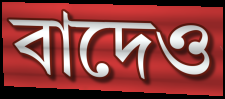
বাদেও